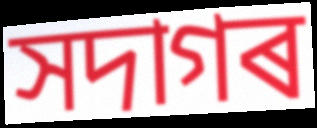
সদাগৰ